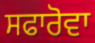
ਸਫਾਰੋਵਾ